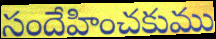
సందేహించకుము